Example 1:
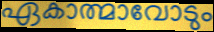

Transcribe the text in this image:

ഏകാത്മാവോടും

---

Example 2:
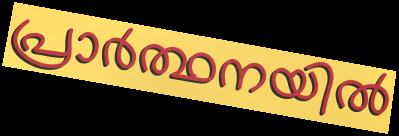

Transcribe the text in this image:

പ്രാർത്ഥനയിൽ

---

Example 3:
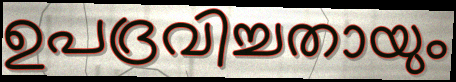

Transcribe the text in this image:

ഉപദ്രവിച്ചതായും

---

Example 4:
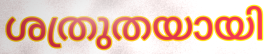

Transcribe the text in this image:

ശത്രുതയായി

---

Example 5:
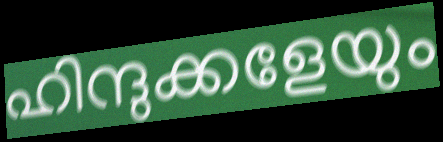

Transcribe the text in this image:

ഹിന്ദുക്കളേയും